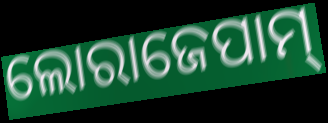
ଲୋରାଜେପାମ୍